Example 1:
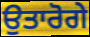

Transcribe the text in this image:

ਉਤਾਰੋਗੇ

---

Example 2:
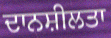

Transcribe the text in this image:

ਦਾਨਸ਼ੀਲਤਾ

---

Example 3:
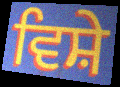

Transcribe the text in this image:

ਵਿਸ਼ੇ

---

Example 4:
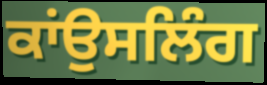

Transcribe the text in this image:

ਕਾਂਉਸਲਿੰਗ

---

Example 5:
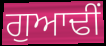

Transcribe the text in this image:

ਗੁਆਢੀਂ